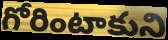
గోరింటాకుని